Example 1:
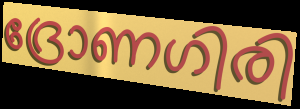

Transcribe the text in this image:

ദ്രോണഗിരി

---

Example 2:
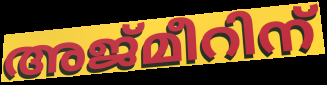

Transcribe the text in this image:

അജ്മീറിന്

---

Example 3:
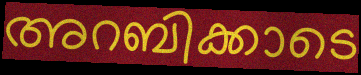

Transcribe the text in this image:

അറബിക്കാടെ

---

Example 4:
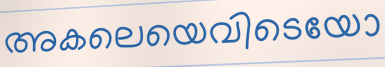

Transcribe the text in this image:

അകലെയെവിടെയോ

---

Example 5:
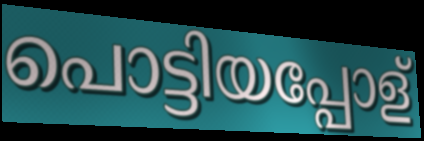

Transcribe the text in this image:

പൊട്ടിയപ്പോള്